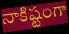
నాకిష్టంగా